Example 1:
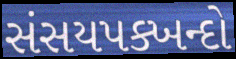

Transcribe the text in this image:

સંસયપક્ખન્દો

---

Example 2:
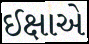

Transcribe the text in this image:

ઈક્ષાએ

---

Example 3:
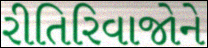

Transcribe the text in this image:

રીતિરિવાજોને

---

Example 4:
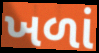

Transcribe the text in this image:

ખળાં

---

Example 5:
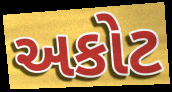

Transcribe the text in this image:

અકોટ